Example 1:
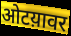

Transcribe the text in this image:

ओटय़ावर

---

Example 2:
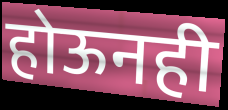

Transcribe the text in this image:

होऊनही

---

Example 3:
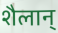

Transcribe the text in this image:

शैलान्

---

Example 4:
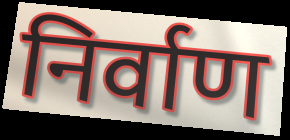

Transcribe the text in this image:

निर्वाण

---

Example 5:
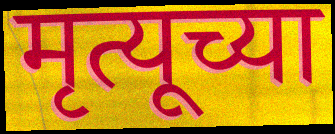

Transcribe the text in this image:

मृत्यूच्या